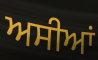
ਅਸੀਆਂ